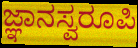
ಜ್ಞಾನಸ್ವರೂಪಿ